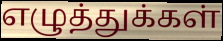
எழுத்துக்கள்